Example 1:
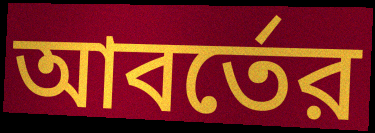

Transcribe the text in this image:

আবর্তের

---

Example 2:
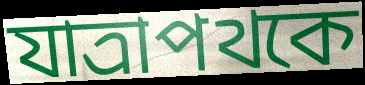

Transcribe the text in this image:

যাত্রাপথকে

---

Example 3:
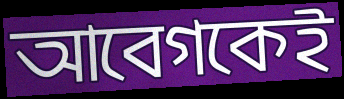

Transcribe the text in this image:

আবেগকেই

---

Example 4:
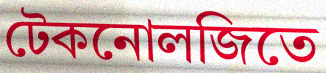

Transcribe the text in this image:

টেকনোলজিতে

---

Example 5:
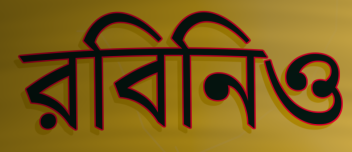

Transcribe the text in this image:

রবিনিও